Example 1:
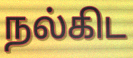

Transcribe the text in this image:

நல்கிட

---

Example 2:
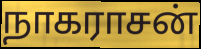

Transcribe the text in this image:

நாகராசன்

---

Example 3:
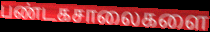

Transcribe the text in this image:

பண்டகசாலைகளை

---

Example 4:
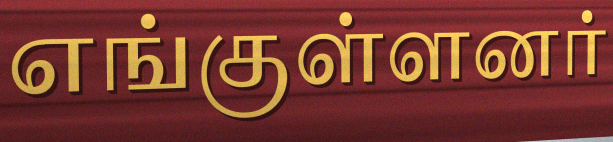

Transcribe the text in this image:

எங்குள்ளனர்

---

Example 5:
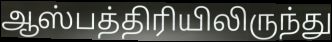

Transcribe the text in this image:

ஆஸ்பத்திரியிலிருந்து